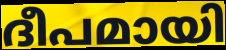
ദീപമായി